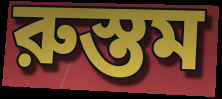
রুস্তম